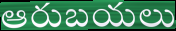
ఆరుబయలు